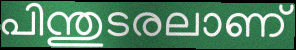
പിന്തുടരലാണ്